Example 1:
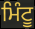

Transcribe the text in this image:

ਮਿੰਟੂ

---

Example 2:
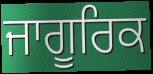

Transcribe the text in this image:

ਜਾਗੂਰਿਕ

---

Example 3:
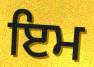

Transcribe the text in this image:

ਇਮ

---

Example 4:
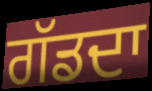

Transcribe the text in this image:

ਗੱਡਦਾ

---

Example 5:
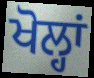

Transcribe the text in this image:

ਖੋਲ੍ਹਾਂ